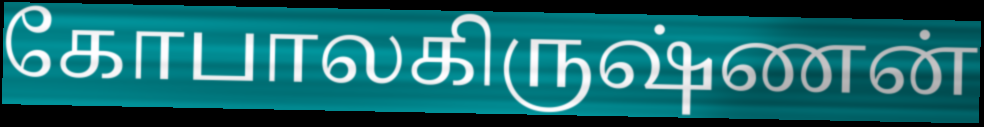
கோபாலகிருஷ்ணன்